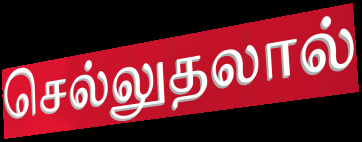
செல்லுதலால்